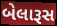
બેલારૂસ